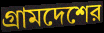
গ্রামদেশের